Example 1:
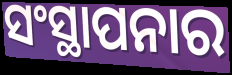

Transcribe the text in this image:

ସଂସ୍ଥାପନାର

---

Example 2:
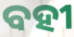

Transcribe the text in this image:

ବହୀ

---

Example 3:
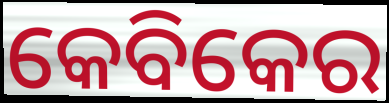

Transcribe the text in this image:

କେବିକେର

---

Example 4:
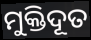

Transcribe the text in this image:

ମୁକ୍ତିଦୂତ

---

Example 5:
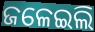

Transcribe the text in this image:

ଜଳେଇଲି